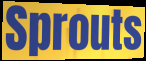
Sprouts